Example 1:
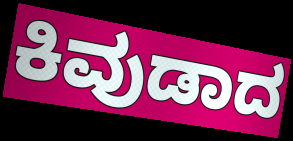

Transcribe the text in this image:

ಕಿವುಡಾದ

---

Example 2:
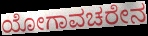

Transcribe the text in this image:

ಯೋಗಾವಚರೇನ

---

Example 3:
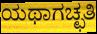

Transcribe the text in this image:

ಯಥಾಗಚ್ಛತಿ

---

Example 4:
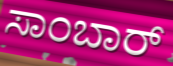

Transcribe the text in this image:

ಸಾಂಬಾರ್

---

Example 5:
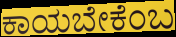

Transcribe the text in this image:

ಕಾಯಬೇಕೆಂಬ